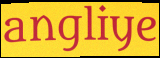
angliye